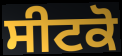
ਸੀਟਕੋ